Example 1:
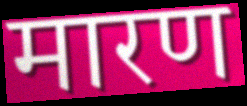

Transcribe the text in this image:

मारण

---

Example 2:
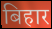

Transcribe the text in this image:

बिहार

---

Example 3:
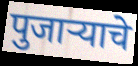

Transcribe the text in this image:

पुजाऱ्याचे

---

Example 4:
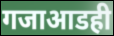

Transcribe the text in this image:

गजाआडही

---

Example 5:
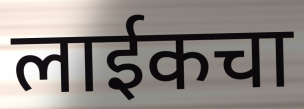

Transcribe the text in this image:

लाईकचा